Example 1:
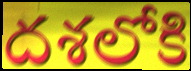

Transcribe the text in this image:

దశలోకి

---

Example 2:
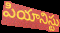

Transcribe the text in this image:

పియానిస్టు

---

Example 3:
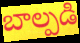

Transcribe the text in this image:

బాల్పడి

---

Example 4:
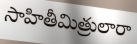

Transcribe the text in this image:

సాహితీమిత్రులారా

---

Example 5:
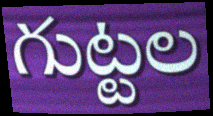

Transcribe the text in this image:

గుట్టల